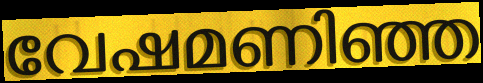
വേഷമണിഞ്ഞ